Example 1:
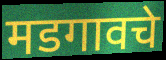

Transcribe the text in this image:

मडगावचे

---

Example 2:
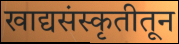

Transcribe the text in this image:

खाद्यसंस्कृतीतून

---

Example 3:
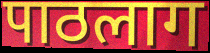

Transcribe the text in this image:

पाठलाग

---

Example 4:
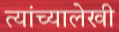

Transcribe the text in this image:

त्यांच्यालेखी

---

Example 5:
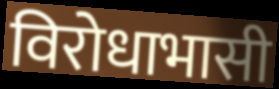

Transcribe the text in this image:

विरोधाभासी